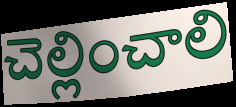
చెల్లించాలి